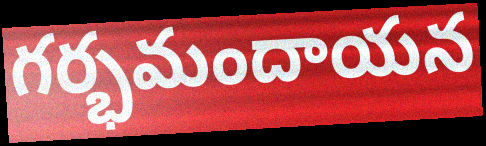
గర్భమందాయన